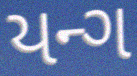
યન્ગ